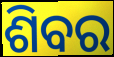
ଶିବର